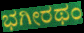
ಭಗೀರಥಂ